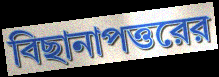
বিছানাপত্তরের